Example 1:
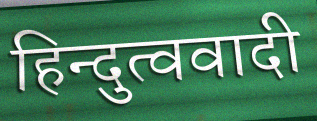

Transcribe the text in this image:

हिन्दुत्ववादी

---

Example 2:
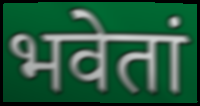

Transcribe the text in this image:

भवेतां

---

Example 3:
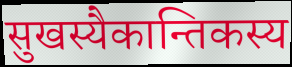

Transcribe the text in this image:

सुखस्यैकान्तिकस्य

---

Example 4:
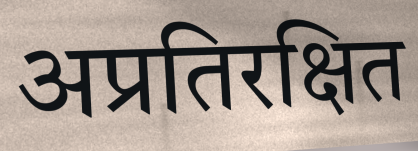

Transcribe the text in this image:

अप्रतिरक्षित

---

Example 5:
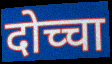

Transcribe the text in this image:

दोच्चा